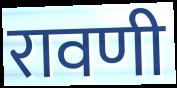
रावणी